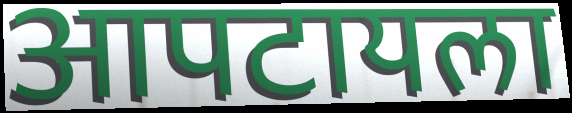
आपटायला